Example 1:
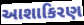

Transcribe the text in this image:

આશાકિરણ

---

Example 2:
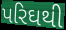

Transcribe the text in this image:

પરિઘથી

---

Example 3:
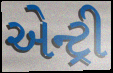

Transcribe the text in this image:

એન્ટ્રી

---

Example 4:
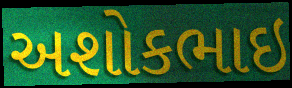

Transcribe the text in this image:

અશોકભાઇ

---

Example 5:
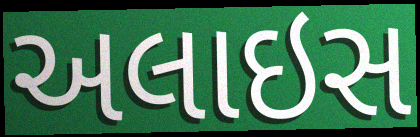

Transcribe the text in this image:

અલાઇસ